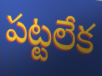
పట్టలేక